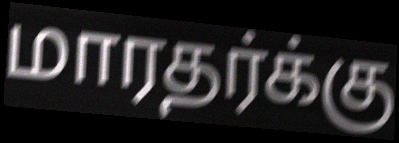
மாரதர்க்கு